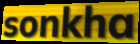
sonkha